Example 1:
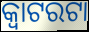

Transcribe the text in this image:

କ୍ଵାଟରଟା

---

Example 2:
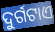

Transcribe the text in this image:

ଦୁର୍ଗଟାଏ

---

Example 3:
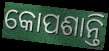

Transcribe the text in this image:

କୋପଶାନ୍ତି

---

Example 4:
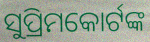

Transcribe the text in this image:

ସୁପ୍ରିମକୋର୍ଟଙ୍କ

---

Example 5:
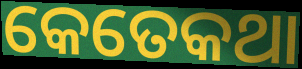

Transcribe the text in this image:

କେତେକଥା